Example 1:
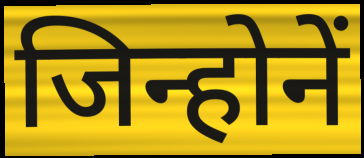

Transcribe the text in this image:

जिन्होनें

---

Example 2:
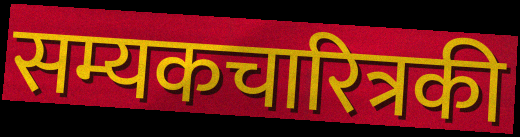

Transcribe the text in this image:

सम्यकचारित्रकी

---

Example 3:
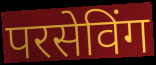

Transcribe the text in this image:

परसेविंग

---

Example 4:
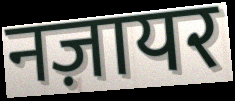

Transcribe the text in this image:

नज़ायर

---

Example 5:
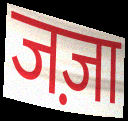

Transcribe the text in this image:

जज़ा